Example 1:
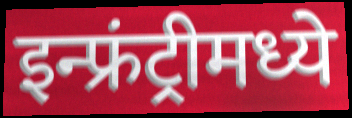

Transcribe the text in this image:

इन्फ्रंट्रीमध्ये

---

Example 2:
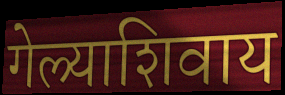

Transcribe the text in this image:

गेल्याशिवाय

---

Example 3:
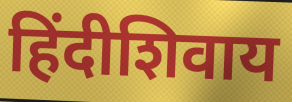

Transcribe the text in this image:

हिंदीशिवाय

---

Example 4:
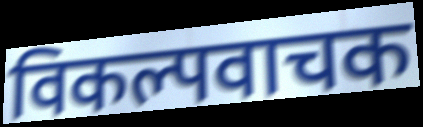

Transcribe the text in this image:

विकल्पवाचक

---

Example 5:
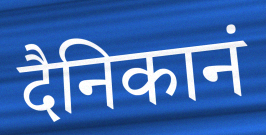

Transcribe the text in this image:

दैनिकानं